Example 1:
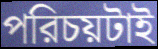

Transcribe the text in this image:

পরিচয়টাই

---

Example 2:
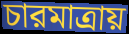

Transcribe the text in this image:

চারমাত্রায়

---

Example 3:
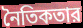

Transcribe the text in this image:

নৈতিকতার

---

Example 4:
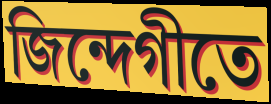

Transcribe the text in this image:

জিন্দেগীতে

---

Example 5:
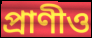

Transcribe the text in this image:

প্রাণীও